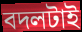
বদলটাই